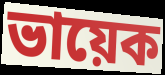
ভায়েক